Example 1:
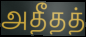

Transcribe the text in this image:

அதீதத்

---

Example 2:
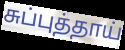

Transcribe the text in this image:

சுப்புத்தாய்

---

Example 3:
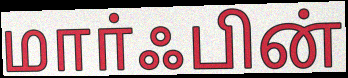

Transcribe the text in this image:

மார்ஃபின்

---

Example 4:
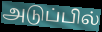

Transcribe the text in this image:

அடுப்பில்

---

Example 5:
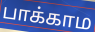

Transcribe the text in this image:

பாக்காம